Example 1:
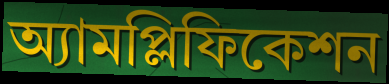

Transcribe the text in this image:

অ্যামপ্লিফিকেশন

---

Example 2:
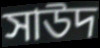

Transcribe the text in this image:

সাউদ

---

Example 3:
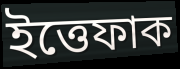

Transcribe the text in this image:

ইত্তেফাক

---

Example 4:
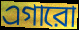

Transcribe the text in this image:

এগারো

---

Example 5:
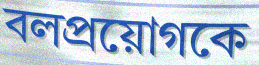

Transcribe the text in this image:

বলপ্রয়োগকে